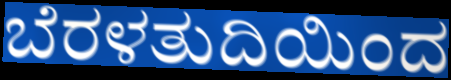
ಬೆರಳತುದಿಯಿಂದ